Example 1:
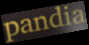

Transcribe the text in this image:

pandia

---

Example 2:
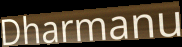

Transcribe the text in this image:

Dharmanu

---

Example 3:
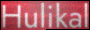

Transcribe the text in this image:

Hulikal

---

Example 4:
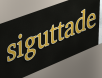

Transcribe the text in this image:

siguttade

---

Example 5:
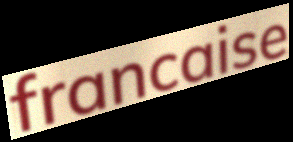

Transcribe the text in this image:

francaise